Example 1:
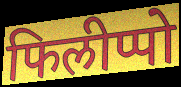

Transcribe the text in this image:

फिलीप्पो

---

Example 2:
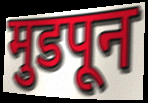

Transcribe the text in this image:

मुडपून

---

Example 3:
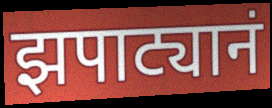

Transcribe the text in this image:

झपाट्यानं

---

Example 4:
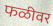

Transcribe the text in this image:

फळीवर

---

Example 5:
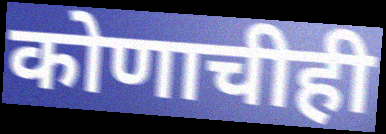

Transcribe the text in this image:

कोणाचीही